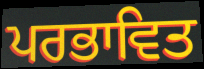
ਪਰਭਾਵਿਤ